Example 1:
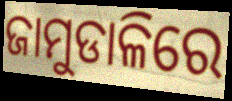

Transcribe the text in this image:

ଜାମୁଡାଳିରେ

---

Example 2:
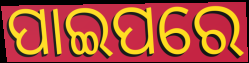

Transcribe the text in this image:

ପାଇପରେ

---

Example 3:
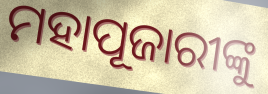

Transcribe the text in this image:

ମହାପୂଜାରୀଙ୍କୁ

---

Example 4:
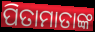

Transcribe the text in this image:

ପିତାମାତାଙ୍କ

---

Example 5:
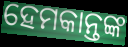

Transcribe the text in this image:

ହେମକାନ୍ତଙ୍କ